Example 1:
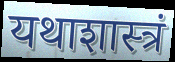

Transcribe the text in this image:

यथाशास्त्रं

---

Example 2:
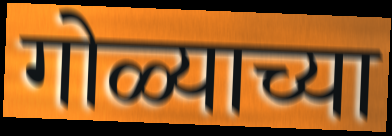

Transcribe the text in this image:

गोळ्याच्या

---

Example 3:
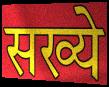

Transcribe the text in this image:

सख्ये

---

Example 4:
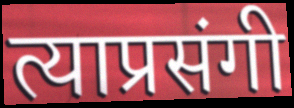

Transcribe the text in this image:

त्याप्रसंगी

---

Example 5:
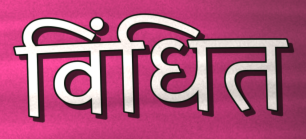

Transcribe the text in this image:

विंधित